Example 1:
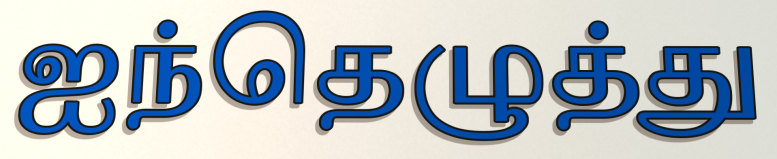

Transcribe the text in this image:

ஐந்தெழுத்து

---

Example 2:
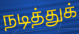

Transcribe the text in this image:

நடித்துக்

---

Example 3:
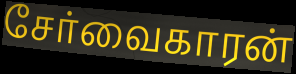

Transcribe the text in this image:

சேர்வைகாரன்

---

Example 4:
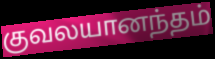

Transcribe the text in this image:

குவலயானந்தம்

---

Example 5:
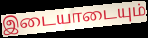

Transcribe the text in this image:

இடையாடையும்